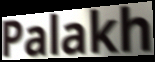
Palakh